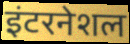
इंटरनेशल